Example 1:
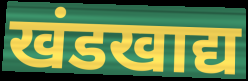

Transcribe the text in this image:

खंडखाद्य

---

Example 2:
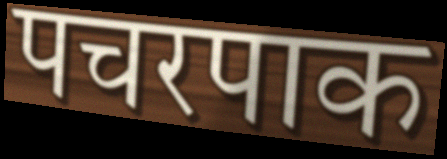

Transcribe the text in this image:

पचरपाक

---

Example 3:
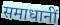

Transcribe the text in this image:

समाधानीं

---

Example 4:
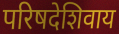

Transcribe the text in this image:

परिषदेशिवाय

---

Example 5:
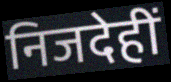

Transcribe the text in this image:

निजदेहीं